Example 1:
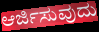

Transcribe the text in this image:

ಆರ್ಜಿಸುವುದು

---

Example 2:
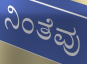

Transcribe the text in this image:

ನಿಂತೆವು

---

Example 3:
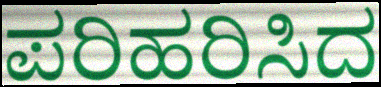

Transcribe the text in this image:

ಪರಿಹರಿಸಿದ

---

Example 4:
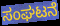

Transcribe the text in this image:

ಸಂಘಟನೆ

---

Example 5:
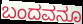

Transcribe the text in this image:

ಬಂದವನೂ